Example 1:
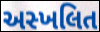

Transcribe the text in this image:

અસ્ખલિત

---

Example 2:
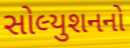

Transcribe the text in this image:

સોલ્યુશનનો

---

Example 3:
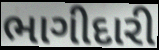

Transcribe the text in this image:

ભાગીદારી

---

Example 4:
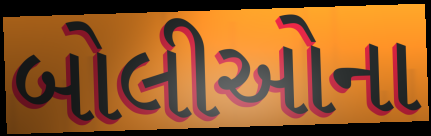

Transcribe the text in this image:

બોલીઓના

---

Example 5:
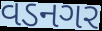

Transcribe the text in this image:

વડનગર